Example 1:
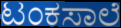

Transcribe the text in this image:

ಟಂಕಸಾಲೆ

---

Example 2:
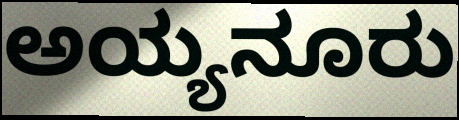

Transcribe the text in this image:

ಅಯ್ಯನೂರು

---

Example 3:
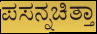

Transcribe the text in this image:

ಪಸನ್ನಚಿತ್ತಾ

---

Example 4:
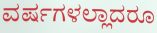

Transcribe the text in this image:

ವರ್ಷಗಳಲ್ಲಾದರೂ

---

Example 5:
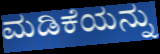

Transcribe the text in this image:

ಮಡಿಕೆಯನ್ನು